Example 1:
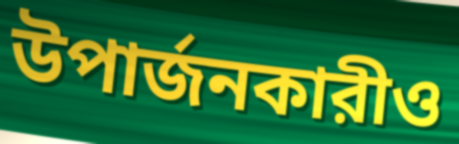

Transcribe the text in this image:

উপার্জনকারীও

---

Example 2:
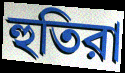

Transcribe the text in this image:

হুতিরা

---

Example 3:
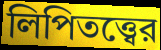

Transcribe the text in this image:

লিপিতত্ত্বের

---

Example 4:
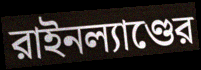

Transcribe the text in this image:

রাইনল্যাণ্ডের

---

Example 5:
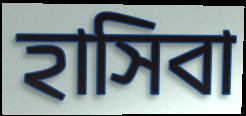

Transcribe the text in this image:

হাসিবা